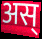
अस्